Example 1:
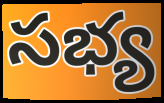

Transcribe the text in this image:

సభ్య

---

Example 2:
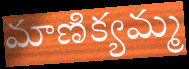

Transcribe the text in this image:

మాణిక్యమ్మ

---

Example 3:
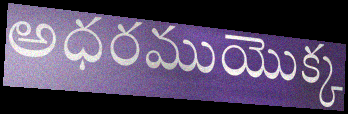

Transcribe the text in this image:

అధరముయొక్క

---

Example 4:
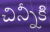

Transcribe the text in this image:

చిన్నీకి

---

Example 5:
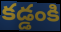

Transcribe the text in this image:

కడ్డంకి